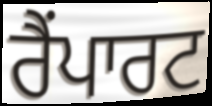
ਰੈਂਪਾਰਟ